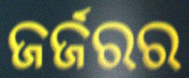
ଜର୍ଜରର